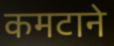
कमटाने